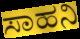
ಸಾಹನಿ